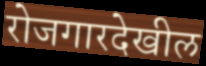
रोजगारदेखील